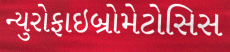
ન્યુરોફાઇબ્રોમેટોસિસ